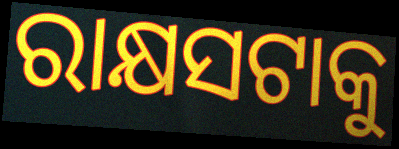
ରାକ୍ଷସଟାକୁ